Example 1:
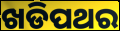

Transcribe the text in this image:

ଖଡିପଥର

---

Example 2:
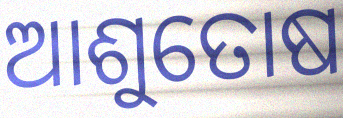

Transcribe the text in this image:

ଆଶୁତୋଷ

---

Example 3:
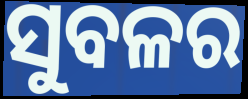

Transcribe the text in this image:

ସୁବଳର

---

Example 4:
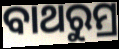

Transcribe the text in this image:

ବାଥରୁମ୍ର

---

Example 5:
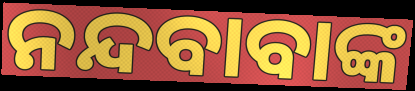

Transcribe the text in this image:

ନନ୍ଦବାବାଙ୍କ